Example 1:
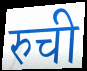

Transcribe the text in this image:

रुची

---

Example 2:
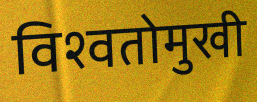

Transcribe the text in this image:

विश्वतोमुखी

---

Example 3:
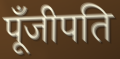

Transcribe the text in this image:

पूँजीपति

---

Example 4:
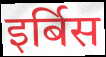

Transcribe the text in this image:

इर्बिस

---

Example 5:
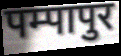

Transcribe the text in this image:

पम्पापुर